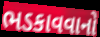
ભડકાવવાનો